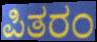
ಪಿತರಂ